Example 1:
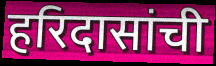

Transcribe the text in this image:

हरिदासांची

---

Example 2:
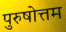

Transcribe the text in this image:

पुरुषोत्तम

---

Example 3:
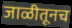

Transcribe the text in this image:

जाळीतूनच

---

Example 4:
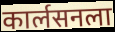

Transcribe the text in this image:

कार्लसनला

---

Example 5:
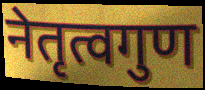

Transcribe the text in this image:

नेतृत्वगुण